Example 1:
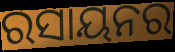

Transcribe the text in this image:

ରସାୟନର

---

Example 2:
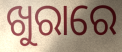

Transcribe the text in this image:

ଖୁରାରେ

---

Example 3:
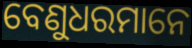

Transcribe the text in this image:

ବେଣୁଧରମାନେ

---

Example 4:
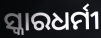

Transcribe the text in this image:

ସ୍କାରଧର୍ମୀ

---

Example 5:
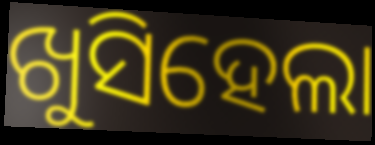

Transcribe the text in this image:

ଖୁସିହେଲା